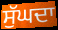
ਸੁੱਘਦਾ